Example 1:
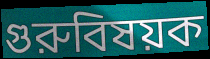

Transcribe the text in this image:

গুরুবিষয়ক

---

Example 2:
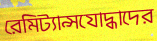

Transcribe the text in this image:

রেমিট্যান্সযোদ্ধাদের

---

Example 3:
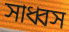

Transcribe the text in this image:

সাধ্বস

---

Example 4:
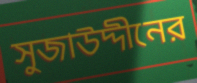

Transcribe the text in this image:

সুজাউদ্দীনের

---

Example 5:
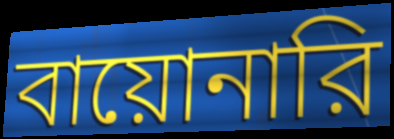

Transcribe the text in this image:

বায়োনারি